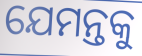
ଯେମନ୍ତକୁ